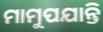
ମାମୁପଯାନ୍ତି